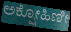
ಅಕ್ಷೋಹಿಣೀ